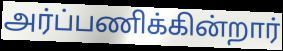
அர்ப்பணிக்கின்றார்